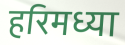
हरिमध्या